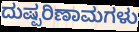
ದುಷ್ಪರಿಣಾಮಗಳು